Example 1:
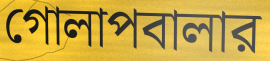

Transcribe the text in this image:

গোলাপবালার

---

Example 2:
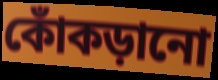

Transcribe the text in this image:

কোঁকড়ানো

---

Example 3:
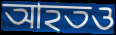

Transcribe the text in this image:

আহতও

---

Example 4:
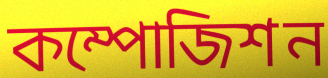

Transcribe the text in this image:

কম্পোজিশন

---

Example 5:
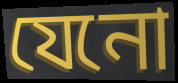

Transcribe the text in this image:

যেনো